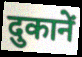
दुकानें